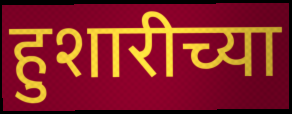
हुशारीच्या